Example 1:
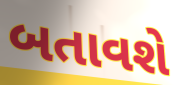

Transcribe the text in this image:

બતાવશે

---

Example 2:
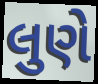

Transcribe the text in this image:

લુણે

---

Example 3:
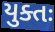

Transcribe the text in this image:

યુક્તઃ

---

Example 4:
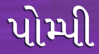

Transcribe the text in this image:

પોમ્પી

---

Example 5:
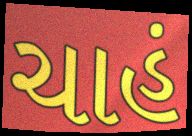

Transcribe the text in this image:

ચાહં